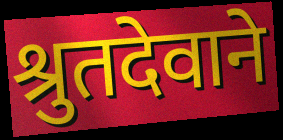
श्रुतदेवाने